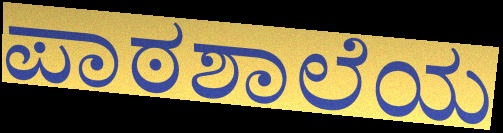
ಪಾಠಶಾಲೆಯ